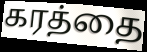
கரத்தை